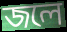
জলে